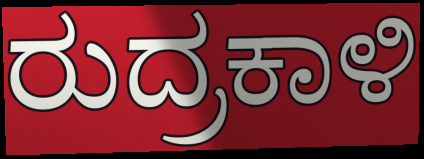
ರುದ್ರಕಾಳಿ